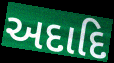
અદાદિ